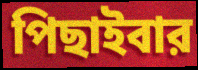
পিছাইবার